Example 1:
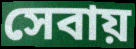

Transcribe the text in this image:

সেবায়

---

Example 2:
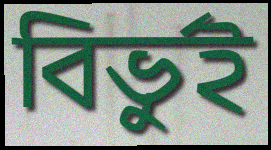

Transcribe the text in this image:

বির্ভুই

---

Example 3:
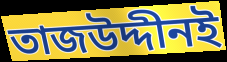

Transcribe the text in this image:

তাজউদ্দীনই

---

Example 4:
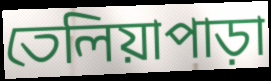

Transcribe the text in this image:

তেলিয়াপাড়া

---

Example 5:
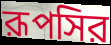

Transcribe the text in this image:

রূপসির